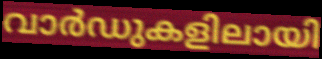
വാർഡുകളിലായി